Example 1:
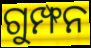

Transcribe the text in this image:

ଗୁମ୍ଫନ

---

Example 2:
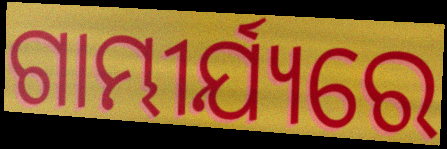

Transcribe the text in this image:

ଗାମ୍ଭୀର୍ଯ୍ୟରେ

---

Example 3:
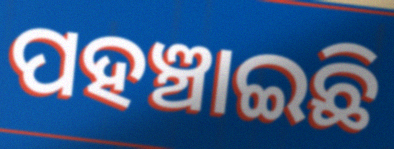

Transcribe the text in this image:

ପହଞ୍ଚାଇଛି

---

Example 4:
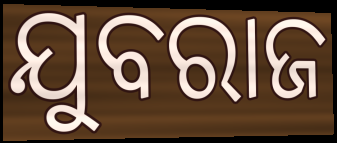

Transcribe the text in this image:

ଯୁବରାଜ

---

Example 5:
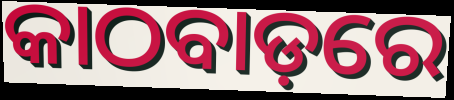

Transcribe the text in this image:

କାଠବାଡ଼ରେ